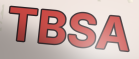
TBSA